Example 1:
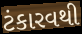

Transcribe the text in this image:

ટંકારવથી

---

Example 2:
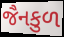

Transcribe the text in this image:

જૈનકુળ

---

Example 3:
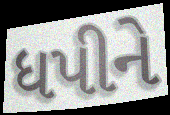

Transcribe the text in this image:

ધપીને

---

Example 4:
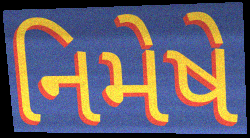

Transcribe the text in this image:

નિમેષે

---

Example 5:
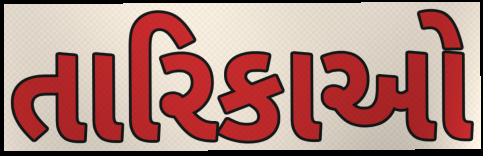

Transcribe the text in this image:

તારિકાઓ